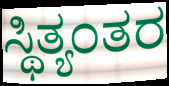
ಸ್ಥಿತ್ಯಂತರ